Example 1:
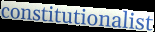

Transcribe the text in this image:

constitutionalist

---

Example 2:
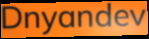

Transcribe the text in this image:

Dnyandev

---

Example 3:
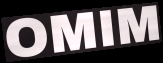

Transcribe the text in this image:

OMIM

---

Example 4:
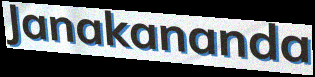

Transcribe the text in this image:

Janakananda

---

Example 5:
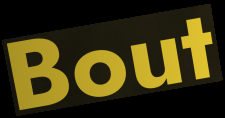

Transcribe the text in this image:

Bout